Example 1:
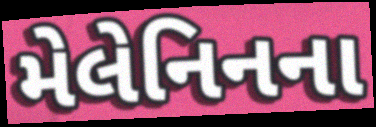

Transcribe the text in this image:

મેલેનિનના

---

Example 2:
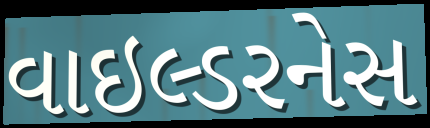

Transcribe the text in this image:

વાઇલ્ડરનેસ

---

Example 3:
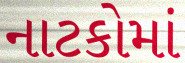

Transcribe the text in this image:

નાટકોમાં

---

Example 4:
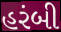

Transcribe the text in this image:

હરંબી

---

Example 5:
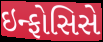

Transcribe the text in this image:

ઇન્ફોસિસે